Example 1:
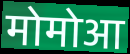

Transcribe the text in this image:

मोमोआ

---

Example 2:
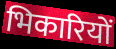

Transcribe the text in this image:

भिकारियों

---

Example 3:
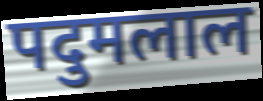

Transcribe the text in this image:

पदुमलाल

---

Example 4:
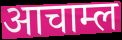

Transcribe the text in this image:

आचाम्ल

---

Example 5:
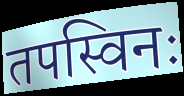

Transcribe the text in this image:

तपस्विनः